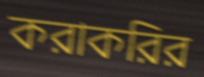
করাকরির